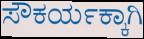
ಸೌಕರ್ಯಕ್ಕಾಗಿ